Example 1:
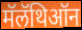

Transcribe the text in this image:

मॅलॅथिऑन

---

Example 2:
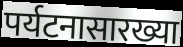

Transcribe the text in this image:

पर्यटनासारख्या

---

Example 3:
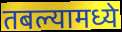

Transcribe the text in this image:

तबल्यामध्ये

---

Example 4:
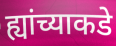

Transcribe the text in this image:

ह्यांच्याकडे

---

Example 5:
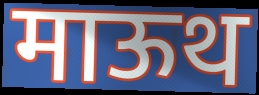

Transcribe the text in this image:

माऊथ